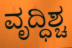
ವೃದ್ಧಿಶ್ಚ